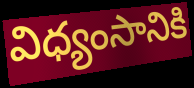
విధ్యంసానికి